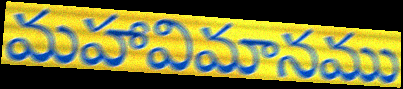
మహావిమానము